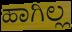
ಹಾಗಿಲ್ಲ